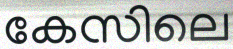
കേസിലെ